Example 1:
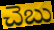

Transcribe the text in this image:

చెబు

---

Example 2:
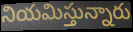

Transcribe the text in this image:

నియమిస్తున్నారు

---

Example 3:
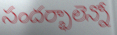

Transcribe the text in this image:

సందర్భాలెన్నో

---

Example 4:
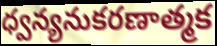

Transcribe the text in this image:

ధ్వన్యనుకరణాత్మక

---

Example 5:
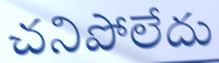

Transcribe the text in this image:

చనిపోలేదు